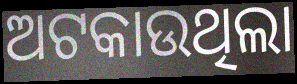
ଅଟକାଉଥିଲା